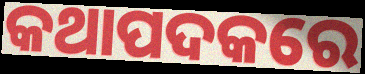
କଥାପଦକରେ